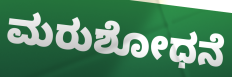
ಮರುಶೋಧನೆ